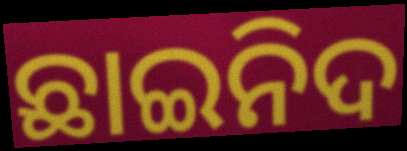
ଛାଇନିଦ